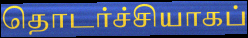
தொடர்ச்சியாகப்